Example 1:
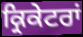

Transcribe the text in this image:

ਕ੍ਰਿਕੇਟਰਾਂ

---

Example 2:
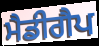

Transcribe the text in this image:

ਮੈਡੀਗੈਪ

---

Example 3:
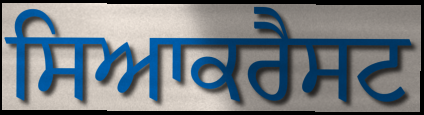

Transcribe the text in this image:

ਸਿਆਕਰੈਸਟ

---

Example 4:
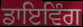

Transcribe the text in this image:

ਡਾਇਵਿੰਗ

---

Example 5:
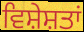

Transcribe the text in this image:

ਵਿਸ਼ੇਸ਼ਤਾਂ